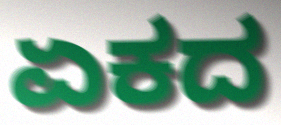
ಏಕದ